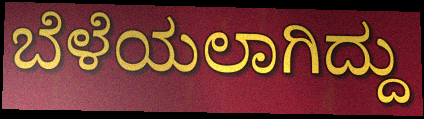
ಬೆಳೆಯಲಾಗಿದ್ದು